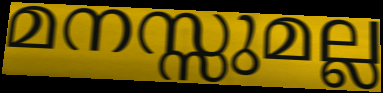
മനസ്സുമല്ല